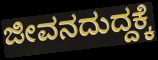
ಜೀವನದುದ್ದಕ್ಕೆ